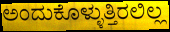
ಅಂದುಕೊಳ್ಳುತ್ತಿರಲಿಲ್ಲ